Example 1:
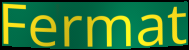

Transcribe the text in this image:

Fermat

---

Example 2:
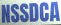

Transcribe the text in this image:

NSSDCA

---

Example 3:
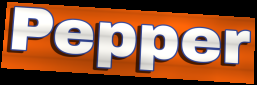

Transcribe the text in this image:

Pepper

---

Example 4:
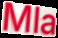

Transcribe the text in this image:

Mla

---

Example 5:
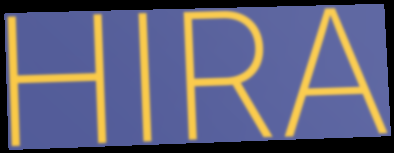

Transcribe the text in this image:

HIRA